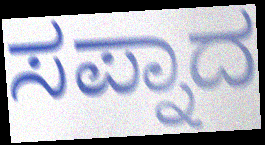
ಸಪ್ನಾದ